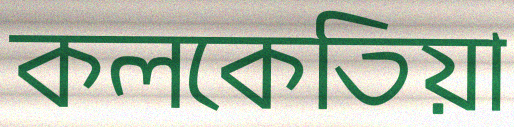
কলকেতিয়া